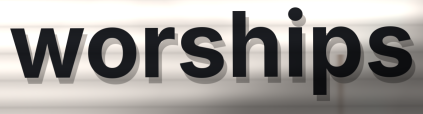
worships